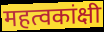
महत्वकांक्षी